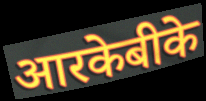
आरकेबीके